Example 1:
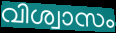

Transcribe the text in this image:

വിശ്വാസം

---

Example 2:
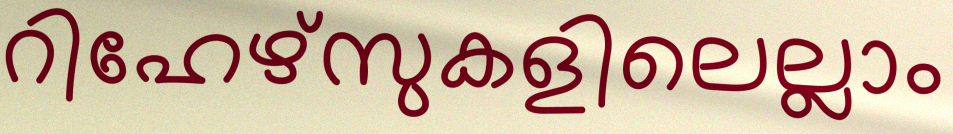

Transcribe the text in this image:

റിഹേഴ്സുകളിലെല്ലാം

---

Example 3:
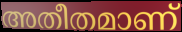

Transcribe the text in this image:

അതീതമാണ്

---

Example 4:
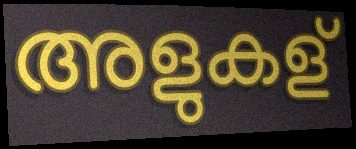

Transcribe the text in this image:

അളുകള്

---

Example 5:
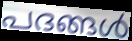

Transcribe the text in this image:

പദങ്ങൾ